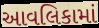
આવલિકામાં